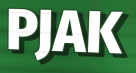
PJAK